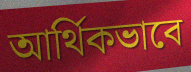
আৰ্থিকভাবে